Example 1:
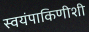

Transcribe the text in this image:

स्वयंपाकिणीशी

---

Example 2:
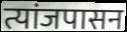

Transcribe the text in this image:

त्यांजपासन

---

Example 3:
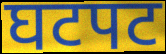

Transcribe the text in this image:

घटपट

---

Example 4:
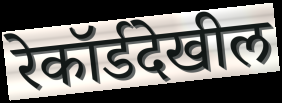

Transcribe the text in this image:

रेकॉर्डदेखील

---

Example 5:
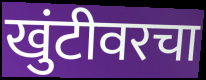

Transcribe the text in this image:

खुंटीवरचा